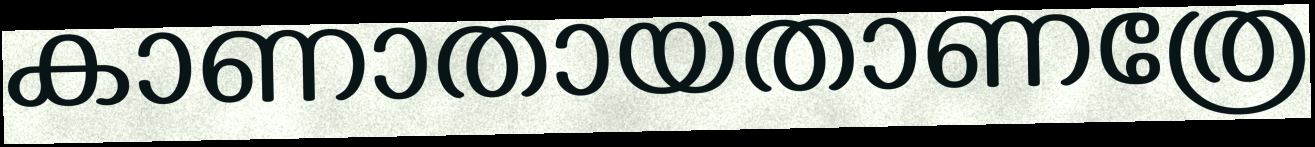
കാണാതായതാണത്രേ